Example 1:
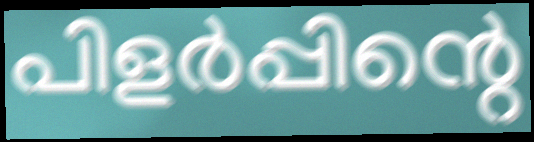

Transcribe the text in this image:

പിളർപ്പിന്റെ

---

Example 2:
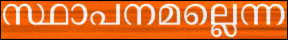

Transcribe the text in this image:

സ്ഥാപനമല്ലെന്ന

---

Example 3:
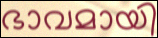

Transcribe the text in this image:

ഭാവമായി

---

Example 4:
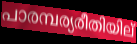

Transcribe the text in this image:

പാരമ്പര്യരീതിയില്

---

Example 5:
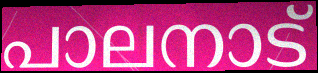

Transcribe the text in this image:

പാലനാട്